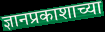
ज्ञानप्रकाशाच्या